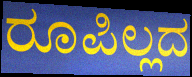
ರೂಪಿಲ್ಲದ